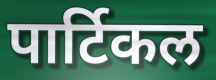
पार्टिकल